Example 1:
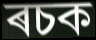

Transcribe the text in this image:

ৰচক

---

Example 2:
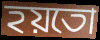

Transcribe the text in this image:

হয়তো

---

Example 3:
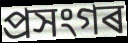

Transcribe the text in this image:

প্ৰসংগৰ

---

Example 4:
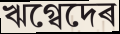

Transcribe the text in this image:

ঋগ্বেদেৰ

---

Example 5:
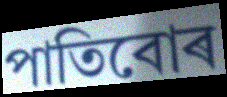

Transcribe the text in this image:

পাতিবোৰ